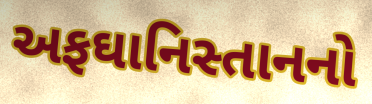
અફઘાનિસ્તાનનો